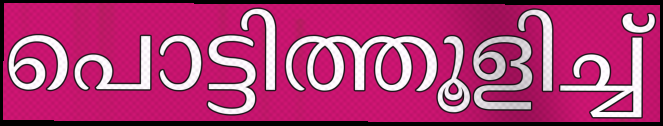
പൊട്ടിത്തൂളിച്ച്